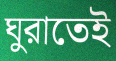
ঘুরাতেই